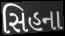
સિહના